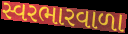
સ્વરભારવાળા